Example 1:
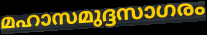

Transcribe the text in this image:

മഹാസമുദ്ദസാഗരം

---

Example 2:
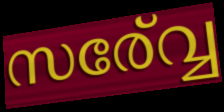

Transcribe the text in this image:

സര്വ്വേ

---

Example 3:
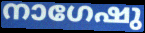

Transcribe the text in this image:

നാഗേഷു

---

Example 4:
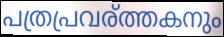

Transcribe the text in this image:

പത്രപ്രവര്ത്തകനും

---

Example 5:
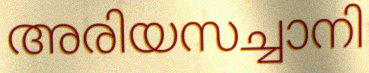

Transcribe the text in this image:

അരിയസച്ചാനി